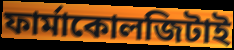
ফার্মাকোলজিটাই